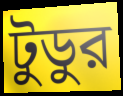
টুডুর